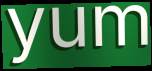
yum